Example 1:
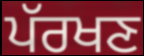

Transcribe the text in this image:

ਪੱਰਖਣ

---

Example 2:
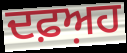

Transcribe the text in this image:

ਦਫ਼ਅ਼ਹ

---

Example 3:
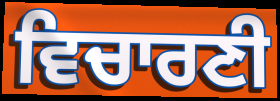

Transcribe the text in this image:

ਵਿਚਾਰਣੀ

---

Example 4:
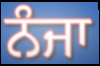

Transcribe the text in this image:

ਨੰਜਾ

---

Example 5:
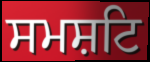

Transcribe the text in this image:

ਸਮਸ਼ਟਿ